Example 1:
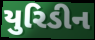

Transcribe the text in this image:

યુરિડીન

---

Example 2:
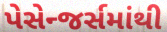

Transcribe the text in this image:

પેસેન્જર્સમાંથી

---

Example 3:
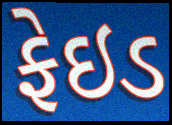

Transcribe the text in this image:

ફેઇડ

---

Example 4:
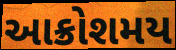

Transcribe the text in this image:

આક્રોશમય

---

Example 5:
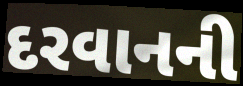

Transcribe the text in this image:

દરવાનની